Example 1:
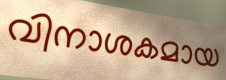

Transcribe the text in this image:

വിനാശകമായ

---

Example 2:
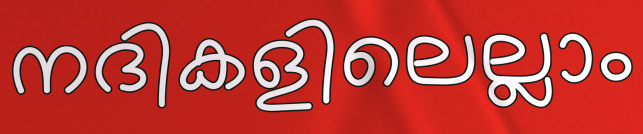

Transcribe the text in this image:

നദികളിലെല്ലാം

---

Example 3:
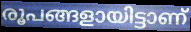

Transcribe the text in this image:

രൂപങ്ങളായിട്ടാണ്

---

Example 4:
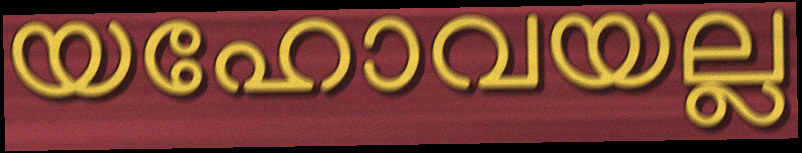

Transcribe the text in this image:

യഹോവയല്ല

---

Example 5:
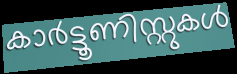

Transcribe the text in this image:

കാർട്ടൂണിസ്റ്റുകൾ